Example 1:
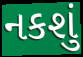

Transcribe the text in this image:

નકશું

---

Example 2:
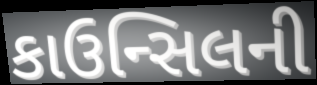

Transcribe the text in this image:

કાઉન્સિલની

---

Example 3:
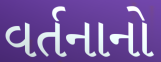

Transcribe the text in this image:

વર્તનાનો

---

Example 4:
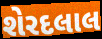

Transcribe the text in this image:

શેરદલાલ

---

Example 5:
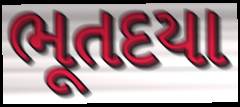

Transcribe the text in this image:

ભૂતદયા